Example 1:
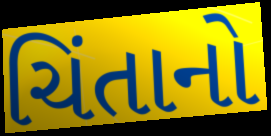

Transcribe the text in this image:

ચિંતાનો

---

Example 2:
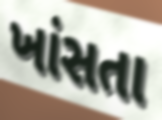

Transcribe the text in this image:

ખાંસતા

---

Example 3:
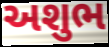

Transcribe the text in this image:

અશુભ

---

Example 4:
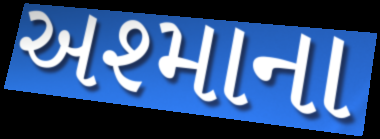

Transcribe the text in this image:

અશ્માના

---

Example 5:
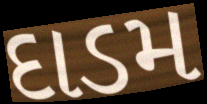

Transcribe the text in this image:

દાડમ